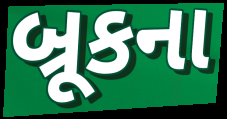
બ્રૂકના